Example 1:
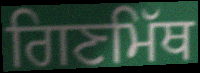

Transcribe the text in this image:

ਗਿਣਮਿੱਥ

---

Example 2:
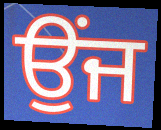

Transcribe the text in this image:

ਉੰਜ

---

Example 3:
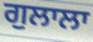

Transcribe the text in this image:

ਗੁਲਾਲਾ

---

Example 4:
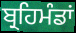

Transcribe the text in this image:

ਬ੍ਰਹਿਮੰਡਾਂ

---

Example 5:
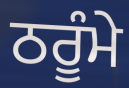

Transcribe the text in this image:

ਠਰੂੰਮੇ